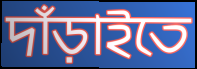
দাঁড়াইতে